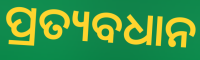
ପ୍ରତ୍ୟବଧାନ